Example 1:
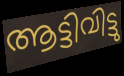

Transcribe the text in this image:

ആട്ടിവിട്ടു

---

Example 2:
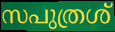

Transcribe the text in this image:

സപുത്രശ്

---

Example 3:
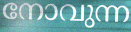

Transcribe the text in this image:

നോവുന്ന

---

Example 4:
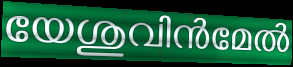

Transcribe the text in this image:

യേശുവിൻമേൽ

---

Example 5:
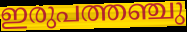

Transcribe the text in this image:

ഇരുപത്തഞ്ചു